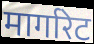
मार्गारेट